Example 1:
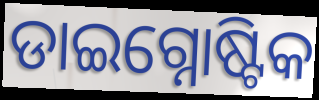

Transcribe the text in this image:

ଡାଇଗ୍ନୋଷ୍ଟିକ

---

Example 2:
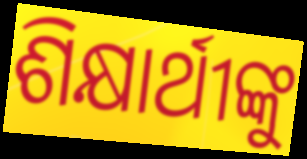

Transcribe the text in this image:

ଶିକ୍ଷାର୍ଥୀଙ୍କୁ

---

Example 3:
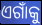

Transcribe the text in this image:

ଏଗାଁକୁ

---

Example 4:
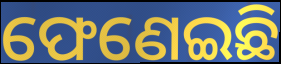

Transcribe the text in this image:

ଫେଣେଇଛି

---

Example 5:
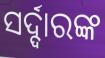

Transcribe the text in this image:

ସର୍ଦ୍ଦାରଙ୍କ